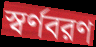
স্বর্ণবরণ